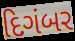
દિગંબર